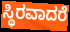
ಸ್ಥಿರವಾದರೆ